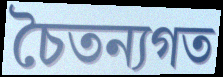
চৈতন্যগত